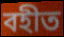
বহীত